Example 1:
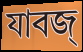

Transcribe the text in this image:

যাবজ্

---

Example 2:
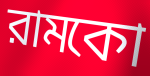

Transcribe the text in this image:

রামকো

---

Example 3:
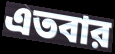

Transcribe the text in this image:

এতবার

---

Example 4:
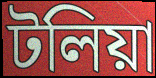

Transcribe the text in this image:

টলিয়া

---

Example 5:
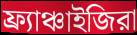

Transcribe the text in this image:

ফ্র্যাঞ্চাইজিরা